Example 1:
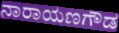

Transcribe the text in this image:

ನಾರಾಯಣಗೌಡ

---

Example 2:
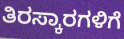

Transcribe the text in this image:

ತಿರಸ್ಕಾರಗಳಿಗೆ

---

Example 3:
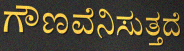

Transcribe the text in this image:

ಗೌಣವೆನಿಸುತ್ತದೆ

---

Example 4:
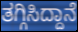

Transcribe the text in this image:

ತಗ್ಗಿಸಿದ್ದಾನೆ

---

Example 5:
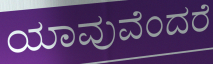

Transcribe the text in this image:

ಯಾವುವೆಂದರೆ